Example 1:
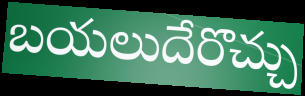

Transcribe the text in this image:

బయలుదేరొచ్చు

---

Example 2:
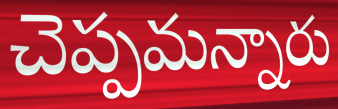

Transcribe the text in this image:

చెప్పమన్నారు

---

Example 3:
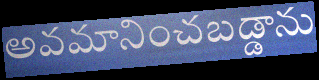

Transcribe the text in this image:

అవమానించబడ్డాను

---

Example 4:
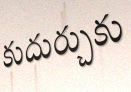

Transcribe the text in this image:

కుదుర్చుకు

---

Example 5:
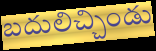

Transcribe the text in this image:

బదులిచ్చిండు